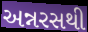
અન્નરસથી